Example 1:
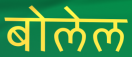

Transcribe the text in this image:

बोलेल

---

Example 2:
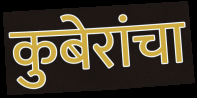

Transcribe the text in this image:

कुबेरांचा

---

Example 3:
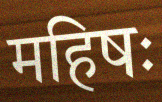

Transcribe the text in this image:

महिषः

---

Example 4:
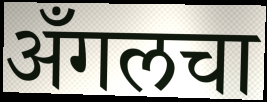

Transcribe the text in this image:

अँगलचा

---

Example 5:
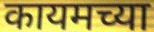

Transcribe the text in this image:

कायमच्या